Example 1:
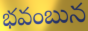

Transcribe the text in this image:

భవంబున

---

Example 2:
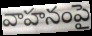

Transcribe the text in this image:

వాహనంపై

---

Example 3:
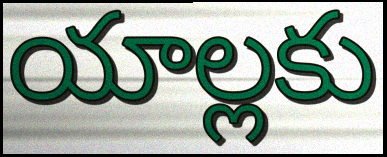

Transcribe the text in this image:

యాల్లకు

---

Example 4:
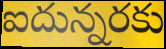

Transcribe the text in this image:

ఐదున్నరకు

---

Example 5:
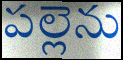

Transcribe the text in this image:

పల్లెను